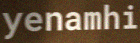
yenamhi